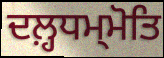
ਦਲ਼੍ਹਧਮ੍ਮੋਤਿ